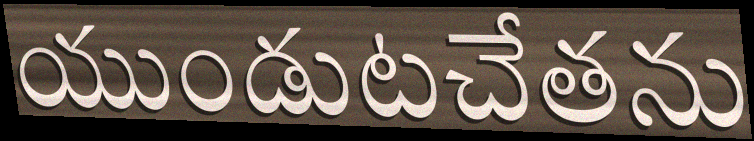
యుండుటచేతను